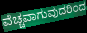
ವೆಚ್ಚವಾಗುವುದರಿಂದ